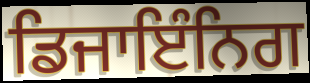
ਡਿਜਾਇੰਨਿਗ